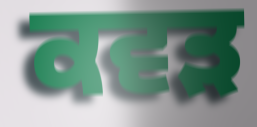
ਕਵੜ